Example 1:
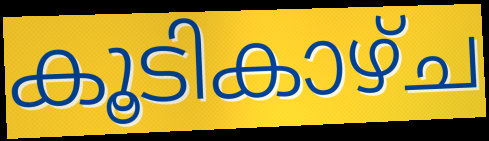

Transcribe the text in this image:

കൂടികാഴ്ച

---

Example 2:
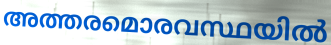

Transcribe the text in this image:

അത്തരമൊരവസ്ഥയിൽ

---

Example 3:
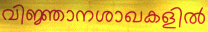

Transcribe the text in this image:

വിജ്ഞാനശാഖകളിൽ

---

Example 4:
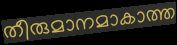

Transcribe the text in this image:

തീരുമാനമാകാത്ത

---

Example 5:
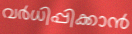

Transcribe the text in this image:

വർധിപ്പിക്കാൻ